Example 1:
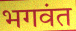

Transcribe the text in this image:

भगवंत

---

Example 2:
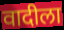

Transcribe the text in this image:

वादीला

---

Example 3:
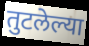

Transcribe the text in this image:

तुटलेल्या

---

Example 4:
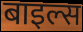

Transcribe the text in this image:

बाइल्स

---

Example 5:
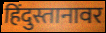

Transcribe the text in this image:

हिंदुस्तानावर